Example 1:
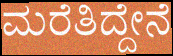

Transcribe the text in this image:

ಮರೆತಿದ್ದೇನೆ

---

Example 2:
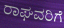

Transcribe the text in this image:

ರಾಘವರಿಗೆ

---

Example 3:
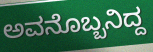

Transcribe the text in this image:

ಅವನೊಬ್ಬನಿದ್ದ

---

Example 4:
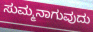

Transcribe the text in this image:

ಸುಮ್ಮನಾಗುವುದು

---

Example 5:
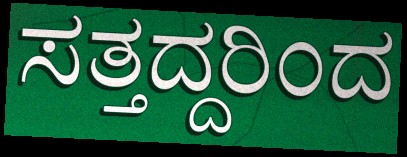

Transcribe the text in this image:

ಸತ್ತದ್ದರಿಂದ